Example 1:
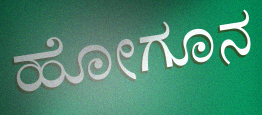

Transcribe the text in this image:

ಹೋಗೂನ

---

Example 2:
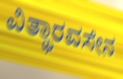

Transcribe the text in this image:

ವಿತ್ಥಾರವಸೇನ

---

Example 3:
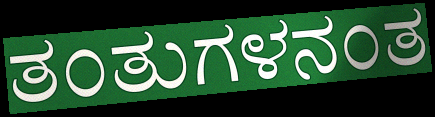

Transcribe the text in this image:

ತಂತುಗಳನಂತ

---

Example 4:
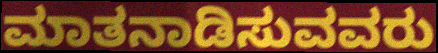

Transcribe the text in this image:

ಮಾತನಾಡಿಸುವವರು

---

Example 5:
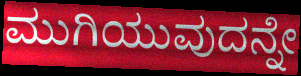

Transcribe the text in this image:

ಮುಗಿಯುವುದನ್ನೇ